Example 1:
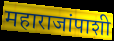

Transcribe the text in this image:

महाराजांपाशी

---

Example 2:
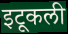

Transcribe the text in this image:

इटूकली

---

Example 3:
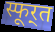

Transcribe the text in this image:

स्फूर्त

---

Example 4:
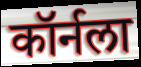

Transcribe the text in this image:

कॉर्नला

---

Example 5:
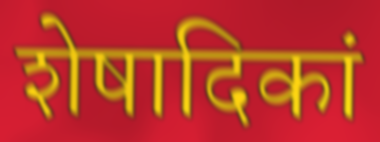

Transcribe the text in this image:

शेषादिकां